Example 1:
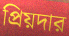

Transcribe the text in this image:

প্রিয়দার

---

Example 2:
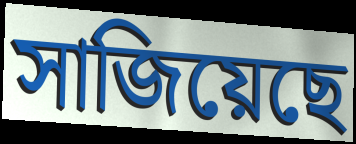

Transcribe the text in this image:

সাজিয়েছে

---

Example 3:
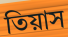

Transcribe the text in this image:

তিয়াস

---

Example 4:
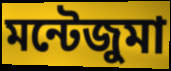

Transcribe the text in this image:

মন্টেজুমা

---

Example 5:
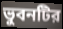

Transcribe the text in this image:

ভুবনটির